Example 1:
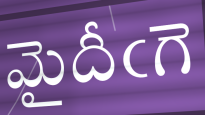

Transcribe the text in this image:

మైదీఁగె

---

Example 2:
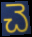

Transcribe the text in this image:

చె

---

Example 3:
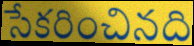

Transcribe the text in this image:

సేకరించినది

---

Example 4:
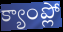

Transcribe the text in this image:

క్యాంప్లో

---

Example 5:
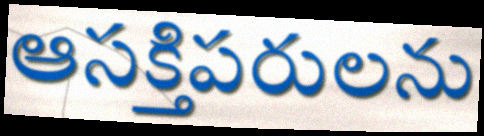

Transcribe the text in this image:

ఆసక్తిపరులను